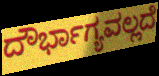
ದೌರ್ಭಾಗ್ಯವಲ್ಲದೆ